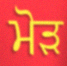
ਮੋੜ